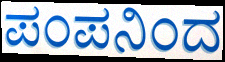
ಪಂಪನಿಂದ